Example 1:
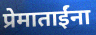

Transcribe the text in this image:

प्रेमाताईंना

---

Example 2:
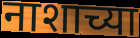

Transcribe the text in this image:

नाशाच्या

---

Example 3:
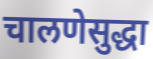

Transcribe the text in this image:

चालणेसुद्धा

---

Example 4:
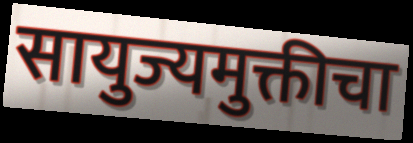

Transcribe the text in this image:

सायुज्यमुक्तीचा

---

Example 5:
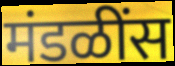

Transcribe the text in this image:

मंडळींस